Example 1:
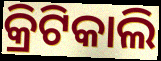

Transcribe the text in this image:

କ୍ରିଟିକାଲି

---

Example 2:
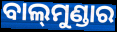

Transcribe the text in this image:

ବାଲ୍‍ମୁଣ୍ଡାର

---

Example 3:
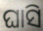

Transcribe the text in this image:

ଘାସି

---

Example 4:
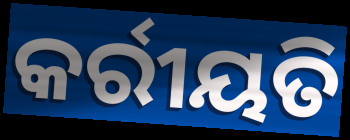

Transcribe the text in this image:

କର୍ରୀୟତି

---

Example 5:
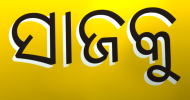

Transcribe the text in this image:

ସାଜକୁ